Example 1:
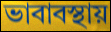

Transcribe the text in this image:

ভাবাবস্থায়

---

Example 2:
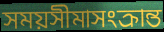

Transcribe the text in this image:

সময়সীমাসংক্রান্ত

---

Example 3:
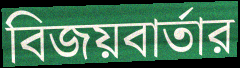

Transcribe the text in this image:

বিজয়বার্তার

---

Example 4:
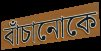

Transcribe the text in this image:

বাঁচানোকে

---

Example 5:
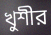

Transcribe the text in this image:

খুশীর